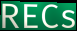
RECs